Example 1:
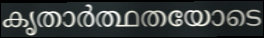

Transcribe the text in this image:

കൃതാർത്ഥതയോടെ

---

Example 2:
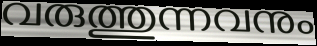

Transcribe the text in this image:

വരുത്തുന്നവനും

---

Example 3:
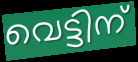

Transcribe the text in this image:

വെട്ടിന്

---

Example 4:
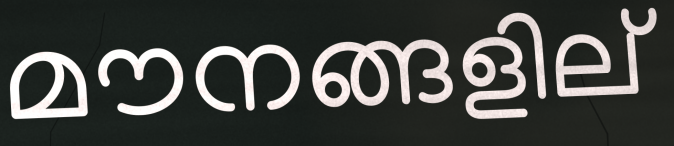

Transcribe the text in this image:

മൗനങ്ങളില്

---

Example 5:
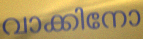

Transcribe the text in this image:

വാക്കിനോ